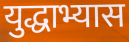
युद्धाभ्यास